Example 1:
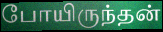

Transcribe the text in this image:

போயிருந்தன்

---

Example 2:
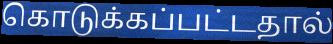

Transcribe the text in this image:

கொடுக்கப்பட்டதால்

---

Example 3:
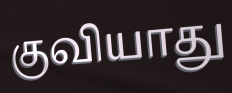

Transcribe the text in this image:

குவியாது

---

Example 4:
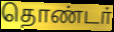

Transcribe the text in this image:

தொண்டர்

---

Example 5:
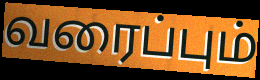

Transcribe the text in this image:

வரைப்பும்